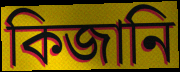
কিজানি